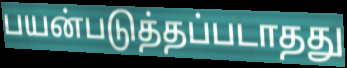
பயன்படுத்தப்படாதது